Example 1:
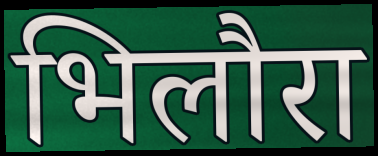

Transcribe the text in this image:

भिलौरा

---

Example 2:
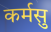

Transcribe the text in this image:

कर्मसु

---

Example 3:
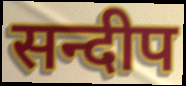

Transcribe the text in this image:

सन्दीप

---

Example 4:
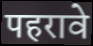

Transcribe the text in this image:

पहरावे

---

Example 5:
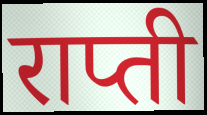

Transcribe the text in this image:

राप्ती